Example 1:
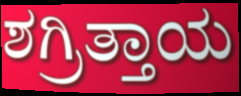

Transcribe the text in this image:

ಶಗ್ರಿತ್ತಾಯ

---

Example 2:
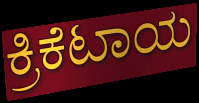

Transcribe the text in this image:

ಕ್ರಿಕೆಟಾಯ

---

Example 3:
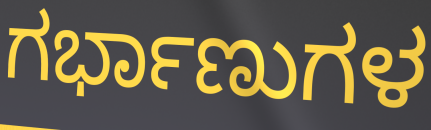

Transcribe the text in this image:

ಗರ್ಭಾಣುಗಳ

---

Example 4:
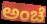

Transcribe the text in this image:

ಅಂಚೆ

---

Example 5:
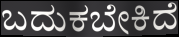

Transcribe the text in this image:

ಬದುಕಬೇಕಿದೆ